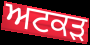
ਅਟਕੜ